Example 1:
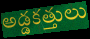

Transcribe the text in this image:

అడ్డకత్తులు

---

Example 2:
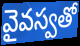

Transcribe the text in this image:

వైవస్వతో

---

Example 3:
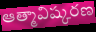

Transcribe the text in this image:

ఆత్మావిష్కరణ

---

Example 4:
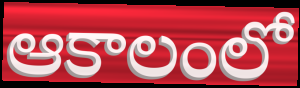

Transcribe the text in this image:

ఆకాలంలో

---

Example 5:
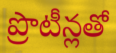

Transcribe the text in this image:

ప్రొటీన్లతో